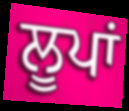
ਲੂਪਾਂ